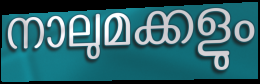
നാലുമക്കളും